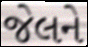
જેલને